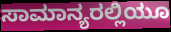
ಸಾಮಾನ್ಯರಲ್ಲಿಯೂ